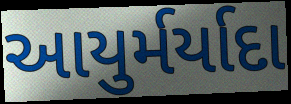
આયુર્મર્યાદા